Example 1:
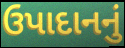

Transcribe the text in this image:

ઉપાદાનનું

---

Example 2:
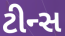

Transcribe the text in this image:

ટીન્સ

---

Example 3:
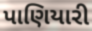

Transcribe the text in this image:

પાણિયારી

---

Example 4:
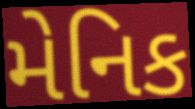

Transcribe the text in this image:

મેનિક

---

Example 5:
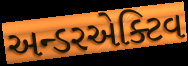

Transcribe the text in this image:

અન્ડરએક્ટિવ